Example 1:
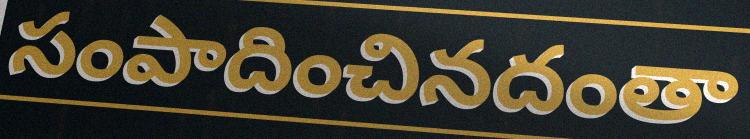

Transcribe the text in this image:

సంపాదించినదంతా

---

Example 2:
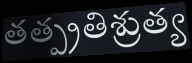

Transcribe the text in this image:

తత్ప్రతిశ్రుత్య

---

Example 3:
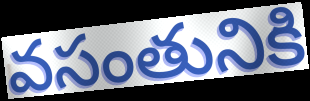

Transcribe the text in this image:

వసంతునికి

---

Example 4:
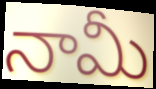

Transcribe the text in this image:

నామీ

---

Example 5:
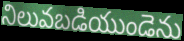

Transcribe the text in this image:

నిలువబడియుండెను